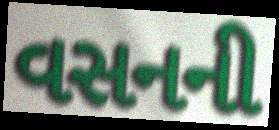
વસનની